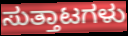
ಸುತ್ತಾಟಗಳು